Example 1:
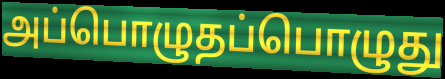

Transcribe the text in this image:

அப்பொழுதப்பொழுது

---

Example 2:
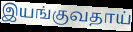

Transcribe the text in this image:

இயங்குவதாய்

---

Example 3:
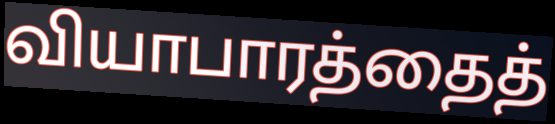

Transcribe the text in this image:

வியாபாரத்தைத்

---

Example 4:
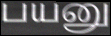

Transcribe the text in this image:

பயனு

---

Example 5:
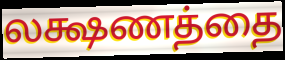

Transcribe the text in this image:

லக்ஷணத்தை